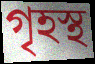
গৃহস্থ